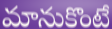
మానుకొంటే